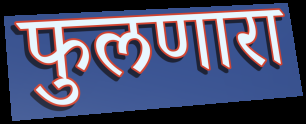
फुलणारा